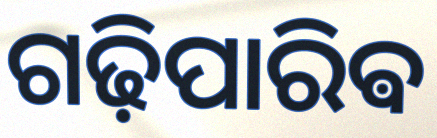
ଗଢ଼ିପାରିଵ